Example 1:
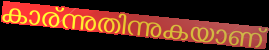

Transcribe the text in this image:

കാര്ന്നുതിന്നുകയാണ്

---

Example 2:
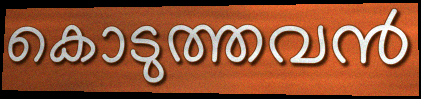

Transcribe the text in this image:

കൊടുത്തവൻ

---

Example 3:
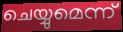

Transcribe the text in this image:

ചെയ്യുമെന്ന്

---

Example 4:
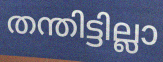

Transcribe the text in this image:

തന്തിട്ടില്ലാ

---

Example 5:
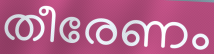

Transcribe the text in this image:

തീരേണം